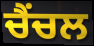
ਚੈਂਚਲ